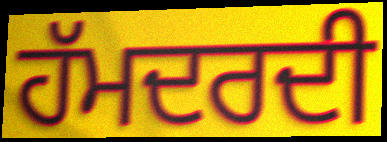
ਹੱਮਦਰਦੀ